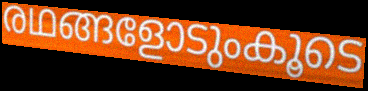
രഥങ്ങളോടുംകൂടെ